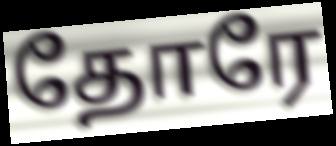
தோரே